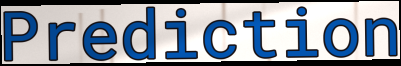
Prediction